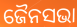
ଜୈନସଭା